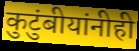
कुटुंबीयांनीही